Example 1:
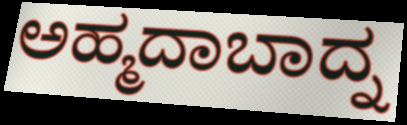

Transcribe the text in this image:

ಅಹ್ಮದಾಬಾದ್ನ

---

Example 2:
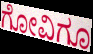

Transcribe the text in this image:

ಗೋವಿಗೂ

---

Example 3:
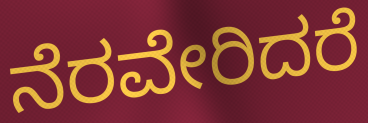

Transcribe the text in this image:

ನೆರವೇರಿದರೆ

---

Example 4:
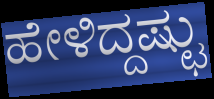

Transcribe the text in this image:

ಹೇಳಿದ್ದಷ್ಟು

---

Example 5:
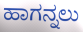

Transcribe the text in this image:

ಹಾಗನ್ನಲು